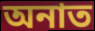
অনাত